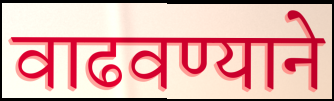
वाढवण्याने